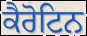
ਕੈਰੋਟਿਨ